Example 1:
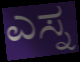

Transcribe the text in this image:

ಎಸ್ನ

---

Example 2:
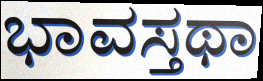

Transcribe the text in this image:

ಭಾವಸ್ತಥಾ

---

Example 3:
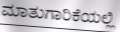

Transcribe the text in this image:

ಮಾತುಗಾರಿಕೆಯಲ್ಲಿ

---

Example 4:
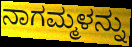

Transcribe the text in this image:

ನಾಗಮ್ಮಳನ್ನು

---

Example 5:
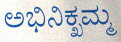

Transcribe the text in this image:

ಅಭಿನಿಕ್ಖಮ್ಮ